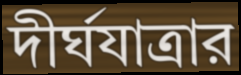
দীর্ঘযাত্রার